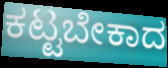
ಕಟ್ಟಬೇಕಾದ